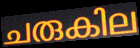
ചരുകില